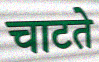
चाटते